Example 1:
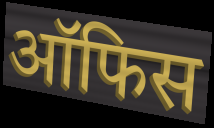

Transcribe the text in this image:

ऑफिस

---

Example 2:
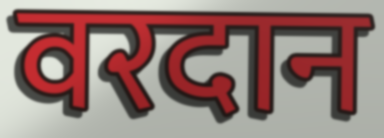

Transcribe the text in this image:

वरदान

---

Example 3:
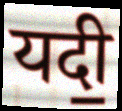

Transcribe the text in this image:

यदी॒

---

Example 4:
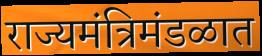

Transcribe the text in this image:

राज्यमंत्रिमंडळात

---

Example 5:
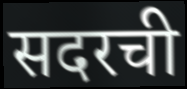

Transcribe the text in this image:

सदरची